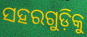
ସହରଗୁଡ଼ିକୁ